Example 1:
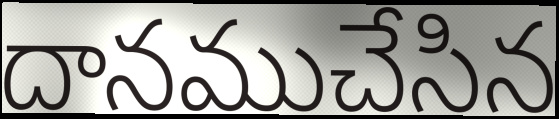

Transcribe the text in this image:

దానముచేసిన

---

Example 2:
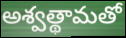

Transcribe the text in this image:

అశ్వత్థామతో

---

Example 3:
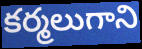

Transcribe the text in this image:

కర్మలుగాని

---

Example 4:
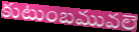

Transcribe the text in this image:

కుటుంబమువలె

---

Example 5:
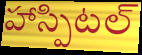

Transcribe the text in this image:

హాస్పిటల్